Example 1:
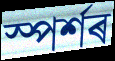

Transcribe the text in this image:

স্পৰ্শৰ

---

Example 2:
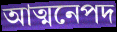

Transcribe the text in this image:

আত্মনেপদ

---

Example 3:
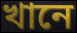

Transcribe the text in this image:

খানে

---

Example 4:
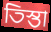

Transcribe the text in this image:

তিস্তা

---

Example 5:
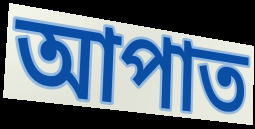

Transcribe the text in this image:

আপাত